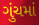
ગુંચમાં